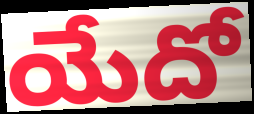
యేదో